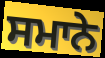
ਸਮਾਨੇ